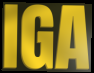
IGA